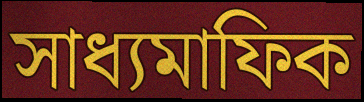
সাধ্যমাফিক